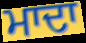
ਮਾਦਾ